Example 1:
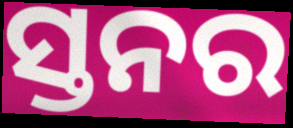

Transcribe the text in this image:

ସ୍ତନର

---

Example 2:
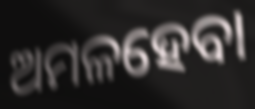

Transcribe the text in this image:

ଅମଳହେବା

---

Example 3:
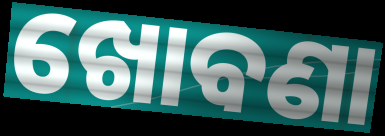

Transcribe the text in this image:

ଖୋବଣା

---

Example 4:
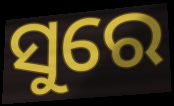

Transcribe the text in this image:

ସୁରେ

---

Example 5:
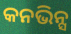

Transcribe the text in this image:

କନଭିନ୍ସ